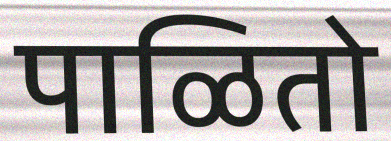
पाळितो